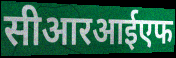
सीआरआईएफ